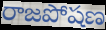
రాజపోషణ